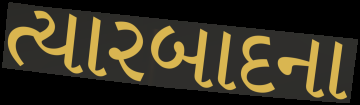
ત્યારબાદના